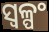
ସ୍ୱଳ୍ପଂ